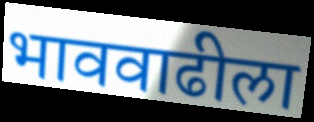
भाववाढीला